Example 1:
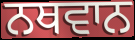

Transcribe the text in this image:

ਨਥਵਾਨ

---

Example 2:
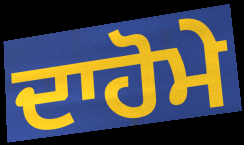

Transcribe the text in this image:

ਦਾਹੋਮੇ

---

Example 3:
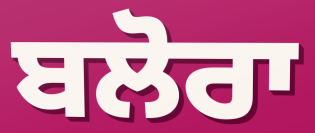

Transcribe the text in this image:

ਬਲੋਰਾ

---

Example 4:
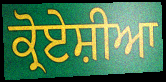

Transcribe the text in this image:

ਕ੍ਰੋਏਸ਼ੀਆ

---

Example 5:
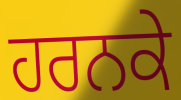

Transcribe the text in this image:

ਹਰਨਕੇ